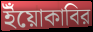
ইঁয়োকাবির